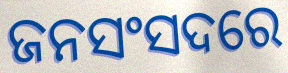
ଜନସଂସଦରେ